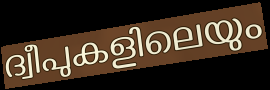
ദ്വീപുകളിലെയും